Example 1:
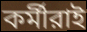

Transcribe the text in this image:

কর্মীরাই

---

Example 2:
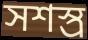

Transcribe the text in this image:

সশস্ত্র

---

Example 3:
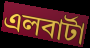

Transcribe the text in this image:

এলবার্টা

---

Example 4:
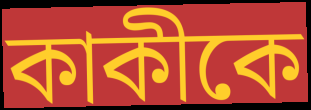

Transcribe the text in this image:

কাকীকে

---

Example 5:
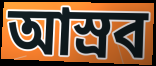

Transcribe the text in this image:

আস্রব